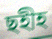
ছহীহ